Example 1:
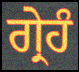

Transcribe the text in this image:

ਗ੍ਰੇਹੰ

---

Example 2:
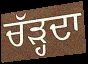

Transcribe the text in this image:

ਚੱੜ੍ਹਦਾ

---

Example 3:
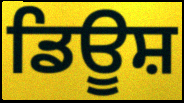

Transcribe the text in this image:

ਡਿਊਸ਼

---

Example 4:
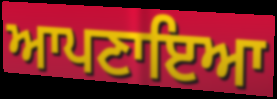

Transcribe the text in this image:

ਆਪਣਾਇਆ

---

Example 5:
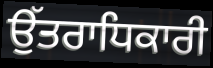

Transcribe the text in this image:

ਉੱਤਰਾਧਿਕਾਰੀ